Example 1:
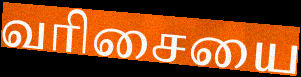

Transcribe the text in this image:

வரிசையை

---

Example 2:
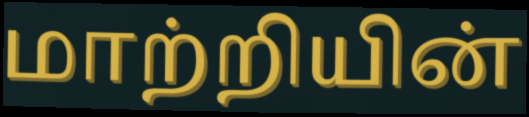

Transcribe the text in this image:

மாற்றியின்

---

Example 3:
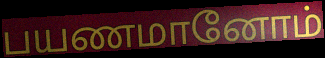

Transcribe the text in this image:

பயணமானோம்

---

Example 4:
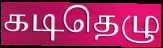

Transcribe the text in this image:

கடிதெழு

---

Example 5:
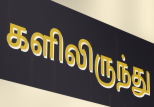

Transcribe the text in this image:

களிலிருந்து